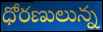
ధోరణులున్న